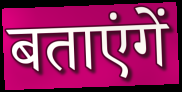
बताएंगें